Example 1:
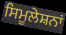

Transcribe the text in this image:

ਸਿਮੂਲੇਸ਼ਨਾਂ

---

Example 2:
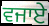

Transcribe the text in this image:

ਵਜਾਏ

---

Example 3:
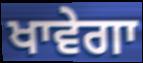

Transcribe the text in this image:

ਖਾਵੇਗਾ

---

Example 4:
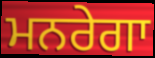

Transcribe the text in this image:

ਮਨਰੇਗਾ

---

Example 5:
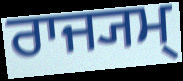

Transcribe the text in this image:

ਰਾਜ੍ਯਮ੍